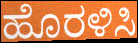
ಹೊರಳಿಸಿ